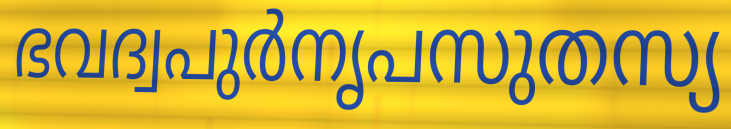
ഭവദ്വപുർനൃപസുതസ്യ